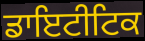
ਡਾਇਟੀਟਿਕ